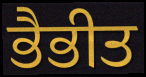
ਭੈਭੀਤ